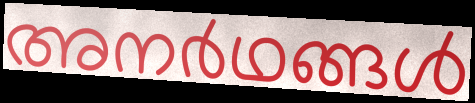
അനർഥങ്ങൾ